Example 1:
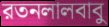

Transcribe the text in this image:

রতনলালবাবু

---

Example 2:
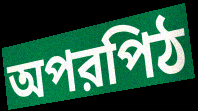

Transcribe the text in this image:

অপরপিঠ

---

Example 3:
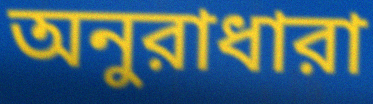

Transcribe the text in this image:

অনুরাধারা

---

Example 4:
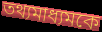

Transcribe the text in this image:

তথ্যমাধ্যমকে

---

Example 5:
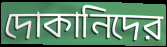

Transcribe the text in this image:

দোকানিদের